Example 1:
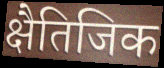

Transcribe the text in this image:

क्षैतिजिक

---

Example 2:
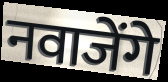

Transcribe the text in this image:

नवाजेंगे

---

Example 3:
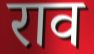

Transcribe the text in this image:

राव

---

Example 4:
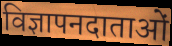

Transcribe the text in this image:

विज्ञापनदाताओं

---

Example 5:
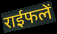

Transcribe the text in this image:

राईफलें